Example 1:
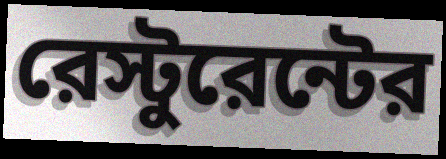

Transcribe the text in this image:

রেস্টুরেন্টের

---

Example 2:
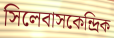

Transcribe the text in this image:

সিলেবাসকেন্দ্রিক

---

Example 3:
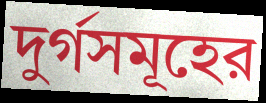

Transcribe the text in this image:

দুর্গসমূহের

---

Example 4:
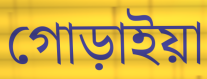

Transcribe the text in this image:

গোড়াইয়া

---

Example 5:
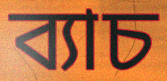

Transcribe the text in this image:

ব্যাচ